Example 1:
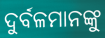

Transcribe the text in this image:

ଦୁର୍ବଳମାନଙ୍କୁ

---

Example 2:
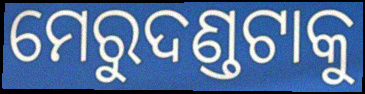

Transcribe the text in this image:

ମେରୁଦଣ୍ଡଟାକୁ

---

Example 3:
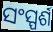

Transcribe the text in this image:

ସଂସ୍ପର୍ଶ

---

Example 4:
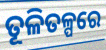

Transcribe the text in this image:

ତୂଳିତଳ୍ପରେ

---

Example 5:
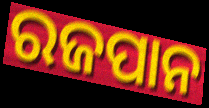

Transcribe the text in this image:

ରଜପାନ